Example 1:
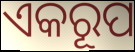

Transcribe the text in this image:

ଏକରୂପ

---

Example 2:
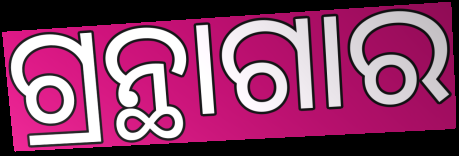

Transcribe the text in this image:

ଗ୍ରନ୍ଥାଗାର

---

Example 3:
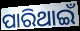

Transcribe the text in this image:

ପାରିଥାଇଁ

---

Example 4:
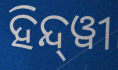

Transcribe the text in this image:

ହିନ୍ଦ୍‍ୱୀ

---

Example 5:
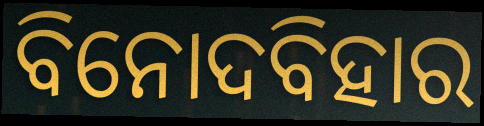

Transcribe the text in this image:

ବିନୋଦବିହାର